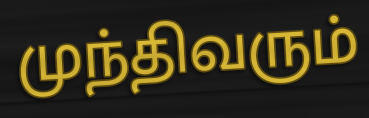
முந்திவரும்